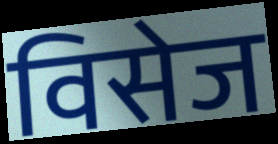
विसेज